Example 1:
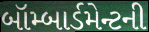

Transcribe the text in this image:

બૉમ્બાર્ડમેન્ટની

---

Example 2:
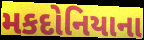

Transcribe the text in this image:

મકદોનિયાના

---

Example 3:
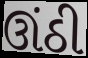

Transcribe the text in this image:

ઊંઠી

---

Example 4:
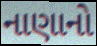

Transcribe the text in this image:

નાણાનો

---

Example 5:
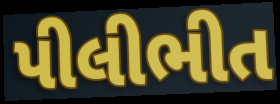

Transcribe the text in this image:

પીલીભીત